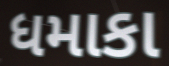
ધમાકા